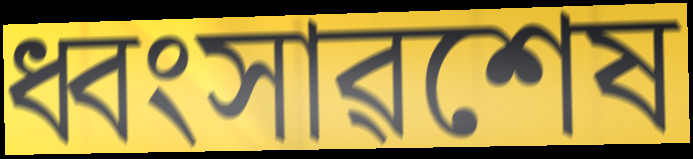
ধ্বংসাৱশেষ